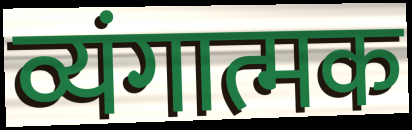
व्यंगात्मक